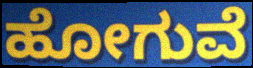
ಹೋಗುವೆ